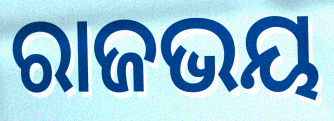
ରାଜଭୟ